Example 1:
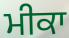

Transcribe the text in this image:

ਮੀਕਾ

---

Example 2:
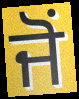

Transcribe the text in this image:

ਜੋਂ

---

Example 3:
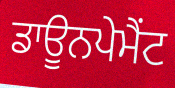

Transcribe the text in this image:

ਡਾਊਨਪੇਮੈਂਟ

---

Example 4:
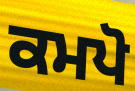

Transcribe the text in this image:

ਕਮਪੋ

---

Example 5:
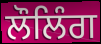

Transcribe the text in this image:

ਲੌਲਿੰਗ